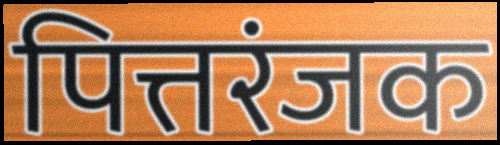
पित्तरंजक